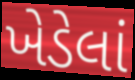
ખેડેલાં